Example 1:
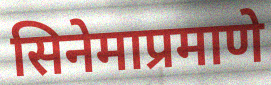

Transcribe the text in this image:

सिनेमाप्रमाणे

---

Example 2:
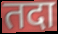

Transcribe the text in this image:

तदा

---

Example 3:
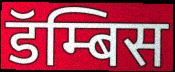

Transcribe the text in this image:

डॅम्बिस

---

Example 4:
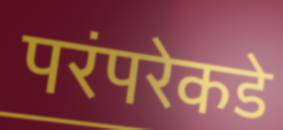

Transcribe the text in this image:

परंपरेकडे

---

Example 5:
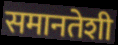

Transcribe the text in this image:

समानतेशी